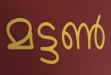
മട്ടൺ